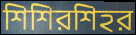
শিশিরশিহর